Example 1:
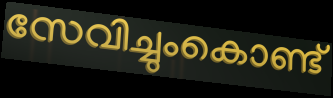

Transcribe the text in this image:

സേവിച്ചുംകൊണ്ട്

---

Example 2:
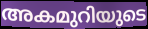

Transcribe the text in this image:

അകമുറിയുടെ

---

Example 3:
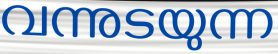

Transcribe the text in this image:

വന്നുടയുന്ന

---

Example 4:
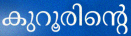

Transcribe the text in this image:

കുറൂരിന്റെ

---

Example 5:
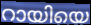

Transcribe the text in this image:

റായിയെ